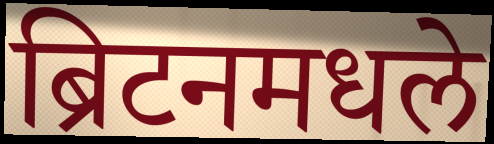
ब्रिटनमधले